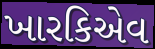
ખારકિએવ